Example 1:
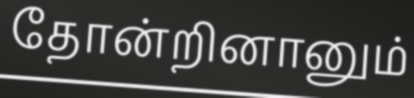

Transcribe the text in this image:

தோன்றினானும்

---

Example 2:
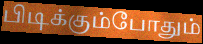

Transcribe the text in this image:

பிடிக்கும்போதும்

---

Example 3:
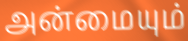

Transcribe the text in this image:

அன்மையும்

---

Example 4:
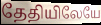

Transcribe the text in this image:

தேதியிலேயே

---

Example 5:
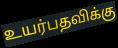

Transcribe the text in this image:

உயர்பதவிக்கு